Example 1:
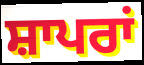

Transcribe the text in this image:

ਸ਼ਾਪਰਾਂ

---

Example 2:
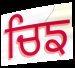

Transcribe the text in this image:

ਚਿਙ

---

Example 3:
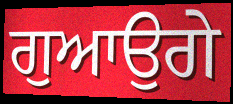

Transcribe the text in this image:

ਗੁਆਉਗੇ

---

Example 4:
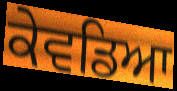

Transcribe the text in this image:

ਕੇਵਡਿਆ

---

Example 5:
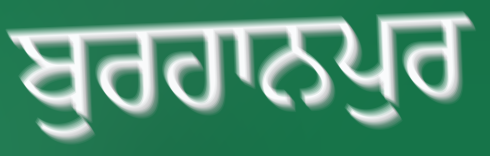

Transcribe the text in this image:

ਬੁਰਹਾਨਪੁਰ